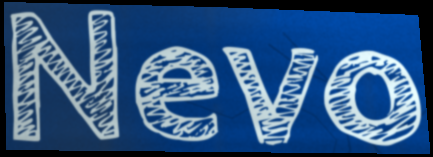
Nevo